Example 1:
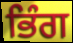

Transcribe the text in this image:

ਭਿੰਗ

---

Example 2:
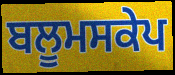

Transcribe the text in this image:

ਬਲੂਮਸਕੇਪ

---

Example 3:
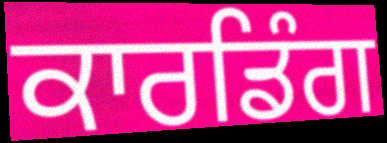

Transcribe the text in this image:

ਕਾਰਡਿੰਗ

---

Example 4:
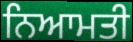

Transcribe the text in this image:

ਨਿਆਮਤੀ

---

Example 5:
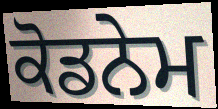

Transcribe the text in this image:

ਕੋਡਨੇਮ